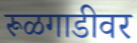
रूळगाडीवर